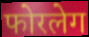
फोरलेग